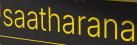
saatharana